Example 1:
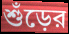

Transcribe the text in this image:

শুঁড়ের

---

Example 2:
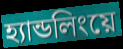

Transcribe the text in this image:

হ্যান্ডলিংয়ে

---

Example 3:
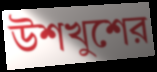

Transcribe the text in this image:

উশখুশের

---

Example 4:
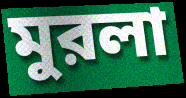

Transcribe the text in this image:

মুরলা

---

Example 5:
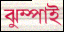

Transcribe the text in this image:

ঝুম্পাই